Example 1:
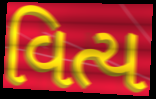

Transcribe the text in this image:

વિત્ય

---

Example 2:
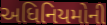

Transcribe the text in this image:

અધિનિયમોની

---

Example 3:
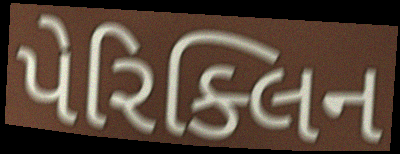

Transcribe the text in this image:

પેરિક્લિન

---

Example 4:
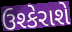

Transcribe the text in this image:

ઉશ્કેરાશે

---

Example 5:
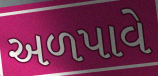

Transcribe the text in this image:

અળપાવે